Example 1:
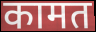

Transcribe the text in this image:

कामत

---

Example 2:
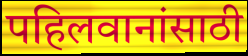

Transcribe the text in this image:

पहिलवानांसाठी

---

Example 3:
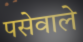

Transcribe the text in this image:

पसेवाले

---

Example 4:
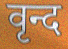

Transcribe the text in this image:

वृन्द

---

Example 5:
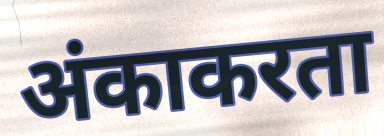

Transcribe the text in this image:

अंकाकरता